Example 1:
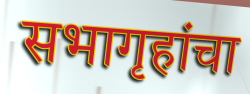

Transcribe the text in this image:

सभागृहांचा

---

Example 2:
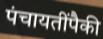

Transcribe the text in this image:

पंचायतींपैकी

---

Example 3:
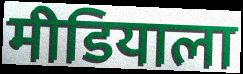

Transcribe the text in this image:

मीडियाला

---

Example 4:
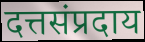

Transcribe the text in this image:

दत्तसंप्रदाय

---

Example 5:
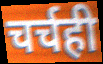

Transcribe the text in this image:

चर्चही